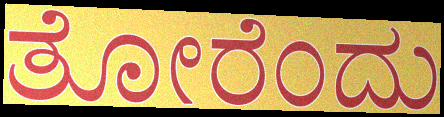
ತೋರೆಂದು